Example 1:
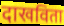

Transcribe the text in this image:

दाखविता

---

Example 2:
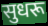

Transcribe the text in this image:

सुधरू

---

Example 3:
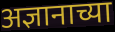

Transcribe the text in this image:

अज्ञानाच्या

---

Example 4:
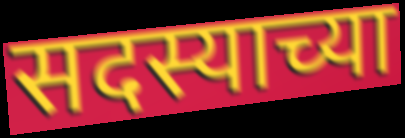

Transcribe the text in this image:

सदस्याच्या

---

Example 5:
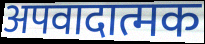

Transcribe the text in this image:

अपवादात्मक